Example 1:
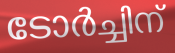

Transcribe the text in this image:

ടോർച്ചിന്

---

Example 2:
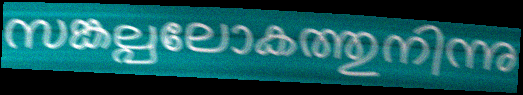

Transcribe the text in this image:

സങ്കല്പലോകത്തുനിന്നു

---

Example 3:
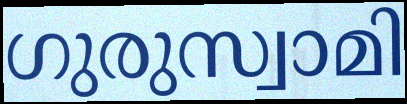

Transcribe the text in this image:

ഗുരുസ്വാമി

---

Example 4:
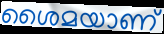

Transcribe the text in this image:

ശൈമയാണ്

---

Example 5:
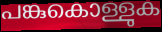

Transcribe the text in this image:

പങ്കുകൊള്ളുക